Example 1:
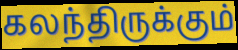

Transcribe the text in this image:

கலந்திருக்கும்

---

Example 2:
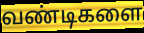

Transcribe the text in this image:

வண்டிகளை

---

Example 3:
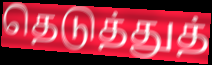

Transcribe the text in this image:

தெடுத்துத்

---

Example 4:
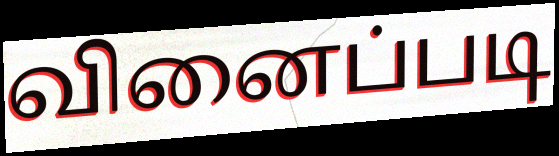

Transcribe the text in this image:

வினைப்படி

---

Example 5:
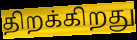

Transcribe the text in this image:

திறக்கிறது